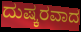
ದುಷ್ಕರವಾದ